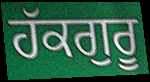
ਹੱਕਗੁਰੂ